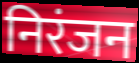
निरंजन